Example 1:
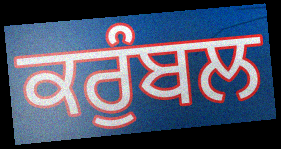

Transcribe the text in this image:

ਕਰੁੰਬਲ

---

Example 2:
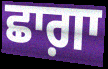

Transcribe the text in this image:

ਛਾਗ਼ਾ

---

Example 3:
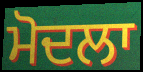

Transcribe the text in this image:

ਮੋਦਲਾ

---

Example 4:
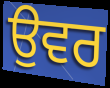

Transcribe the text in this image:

ਉਵਰ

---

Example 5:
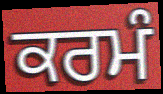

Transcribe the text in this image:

ਕਰਮੰ